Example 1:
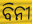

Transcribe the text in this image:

ବିନୀ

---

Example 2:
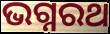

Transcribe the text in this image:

ଭଗ୍ନରଥ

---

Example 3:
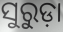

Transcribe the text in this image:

ସୁରୁଡ଼ା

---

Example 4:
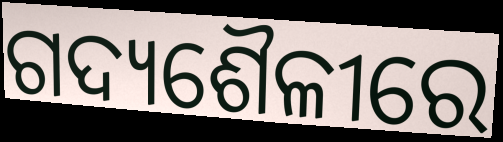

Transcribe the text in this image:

ଗଦ୍ୟଶୈଳୀରେ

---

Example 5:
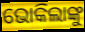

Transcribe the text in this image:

ଭୋକିଲାଙ୍କୁ